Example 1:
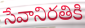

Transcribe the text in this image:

సేవానిరతికి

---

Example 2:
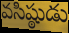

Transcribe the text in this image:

వసిష్ఠుడు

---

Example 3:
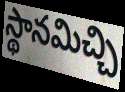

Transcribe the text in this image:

స్థానమిచ్చి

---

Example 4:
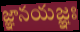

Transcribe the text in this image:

జ్ఞానయజ్ఞః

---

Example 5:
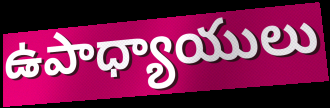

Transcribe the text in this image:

ఉపాధ్యాయులు